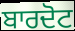
ਬਾਰਦੋਟ